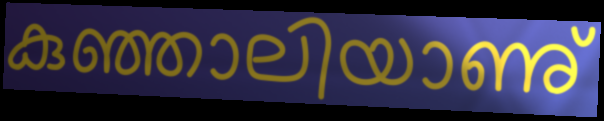
കുഞ്ഞാലിയാണു്